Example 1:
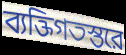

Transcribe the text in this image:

ব্যক্তিগতস্তরে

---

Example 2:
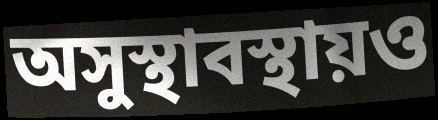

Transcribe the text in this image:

অসুস্থাবস্থায়ও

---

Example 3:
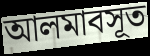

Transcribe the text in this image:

আলমাবসূত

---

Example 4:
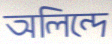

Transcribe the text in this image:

অলিন্দে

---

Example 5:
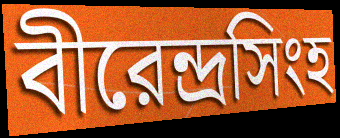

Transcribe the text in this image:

বীরেন্দ্রসিংহ